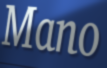
Mano